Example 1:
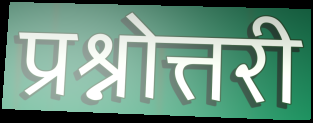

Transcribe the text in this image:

प्रश्नोत्तरी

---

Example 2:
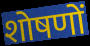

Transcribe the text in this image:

शोषणों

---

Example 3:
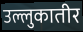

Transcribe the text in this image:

उल्लुकातीर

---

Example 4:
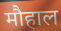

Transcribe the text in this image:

मौहाल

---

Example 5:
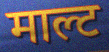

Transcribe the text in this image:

माल्ट